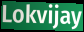
Lokvijay